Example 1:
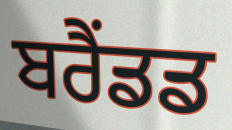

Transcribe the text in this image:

ਬਰੈਂਡਡ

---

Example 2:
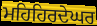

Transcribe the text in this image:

ਮਹਿਹਿਰਦੇਘਰ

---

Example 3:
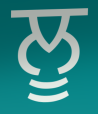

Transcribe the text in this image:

ਲੂ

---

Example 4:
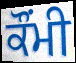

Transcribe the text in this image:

ਕੌਂਮੀ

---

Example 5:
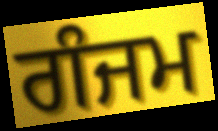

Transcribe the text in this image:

ਗੰਜਮ